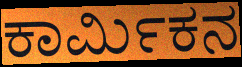
ಕಾರ್ಮಿಕನ